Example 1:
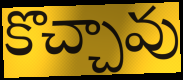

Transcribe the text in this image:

కొచ్చావు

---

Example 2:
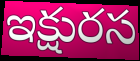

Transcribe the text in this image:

ఇక్షురస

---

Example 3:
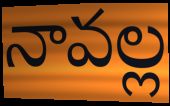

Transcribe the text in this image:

నావల్ల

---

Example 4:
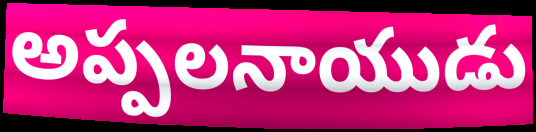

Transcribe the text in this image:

అప్పలనాయుడు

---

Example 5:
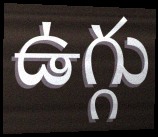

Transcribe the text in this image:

ఉగ్గు